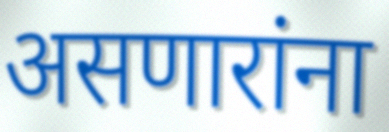
असणारांना